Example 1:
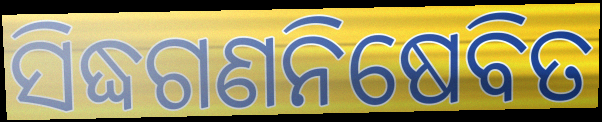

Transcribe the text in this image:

ସିଦ୍ଧଗଣନିଷେବିତ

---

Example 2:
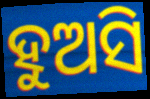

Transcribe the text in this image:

ହୁଅସି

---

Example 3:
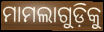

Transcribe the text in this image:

ମାମଲାଗୁଡ଼ିକୁ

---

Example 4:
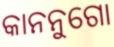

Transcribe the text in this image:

କାନନୁଗୋ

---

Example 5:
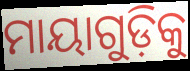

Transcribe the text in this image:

ମାୟାଗୁଡ଼ିକୁ